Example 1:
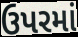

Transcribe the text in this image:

ઉપરમાં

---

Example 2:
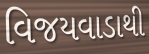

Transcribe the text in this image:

વિજયવાડાથી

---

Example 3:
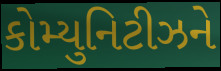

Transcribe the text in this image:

કોમ્યુનિટીઝને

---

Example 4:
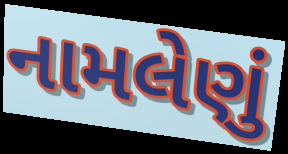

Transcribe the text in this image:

નામલેણું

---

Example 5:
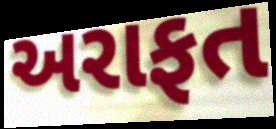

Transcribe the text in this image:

અરાફત